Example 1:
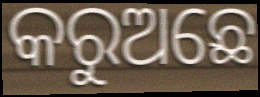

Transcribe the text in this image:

କରୁଅଛେ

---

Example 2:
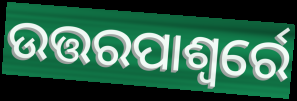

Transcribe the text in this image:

ଉତ୍ତରପାଶ୍ୱର୍ରେ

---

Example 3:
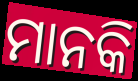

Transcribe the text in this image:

ମାନକି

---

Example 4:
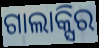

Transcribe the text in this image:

ଗାଲାକ୍ସିର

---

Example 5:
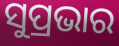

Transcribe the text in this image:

ସୁପ୍ରଭାର